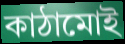
কাঠামোই